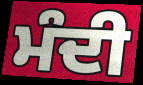
ਮੰਦੀ